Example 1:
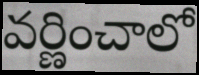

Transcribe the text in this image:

వర్ణించాలో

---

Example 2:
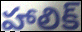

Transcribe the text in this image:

హాలిక్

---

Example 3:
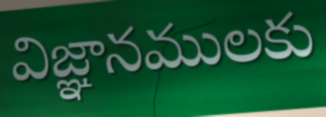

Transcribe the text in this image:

విజ్ఞానములకు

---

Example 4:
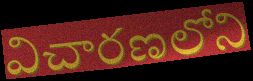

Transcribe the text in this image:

విచారణలోని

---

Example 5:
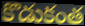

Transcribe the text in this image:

కొడుకంత